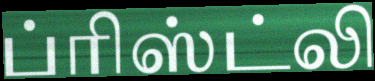
ப்ரிஸ்ட்லி